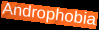
Androphobia